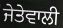
ਜੇਤੇਵਾਲੀ